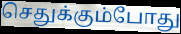
செதுக்கும்போது